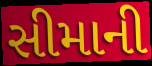
સીમાની